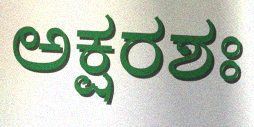
ಅಕ್ಷರಶಃ